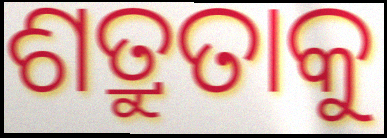
ଶତ୍ରୁତାକୁ